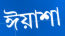
ঈয়াশা